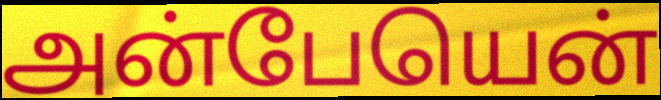
அன்பேயென்